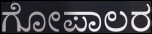
ಗೋಪಾಲರ